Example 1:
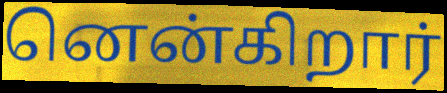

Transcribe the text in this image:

னென்கிறார்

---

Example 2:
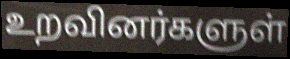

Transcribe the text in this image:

உறவினர்களுள்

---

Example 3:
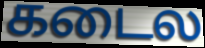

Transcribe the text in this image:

கடைல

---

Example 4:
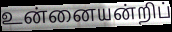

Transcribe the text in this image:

உன்னையன்றிப்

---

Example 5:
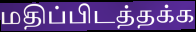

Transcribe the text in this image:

மதிப்பிடத்தக்க